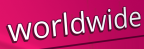
worldwide